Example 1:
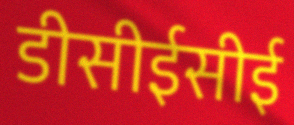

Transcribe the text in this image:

डीसीईसीई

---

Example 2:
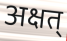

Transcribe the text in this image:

अक्षत्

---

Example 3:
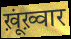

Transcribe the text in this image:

ख़ूंख़्वार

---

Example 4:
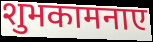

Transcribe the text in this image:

शुभकामनाए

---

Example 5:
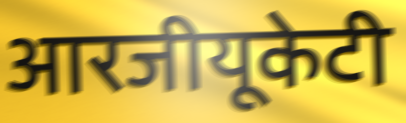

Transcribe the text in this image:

आरजीयूकेटी